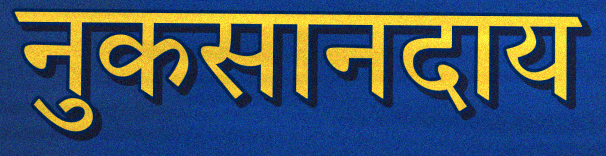
नुकसानदाय